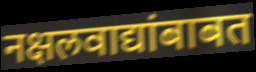
नक्षलवाद्यांबाबत